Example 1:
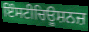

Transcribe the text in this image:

ਇੰਸਟੀਚਿਊਸ਼ਨਜ਼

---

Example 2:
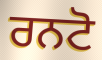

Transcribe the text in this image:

ਰਨਟੋ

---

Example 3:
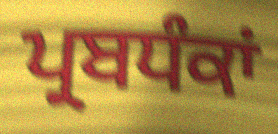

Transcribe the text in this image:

ਪ੍ਰਬਧੰਕਾਂ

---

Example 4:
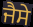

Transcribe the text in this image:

ਜੈਸੇ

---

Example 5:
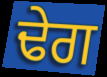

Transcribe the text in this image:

ਢੇਗ